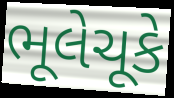
ભૂલેચૂકે